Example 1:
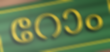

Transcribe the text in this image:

റോം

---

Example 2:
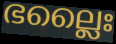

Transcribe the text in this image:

ഭല്ലൈഃ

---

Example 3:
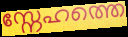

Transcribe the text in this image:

സ്നേഹത്തെ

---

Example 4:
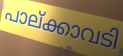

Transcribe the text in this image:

പാല്ക്കാവടി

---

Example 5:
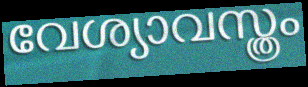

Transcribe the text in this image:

വേശ്യാവസ്ത്രം